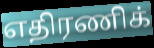
எதிரணிக்